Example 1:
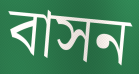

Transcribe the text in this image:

বাসন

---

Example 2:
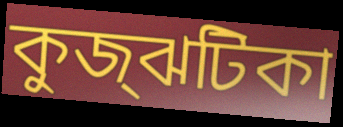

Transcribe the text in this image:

কুজ্‌ঝটিকা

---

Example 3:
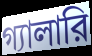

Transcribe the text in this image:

গ্যালারি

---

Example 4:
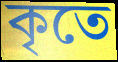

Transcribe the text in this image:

কৃতে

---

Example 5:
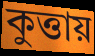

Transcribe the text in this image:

কুত্তায়